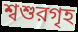
শ্বশুরগৃহ